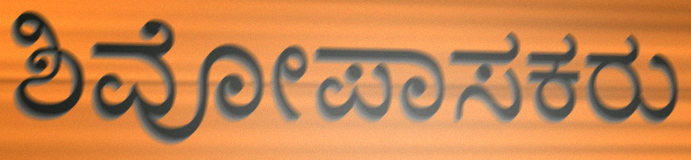
ಶಿವೋಪಾಸಕರು